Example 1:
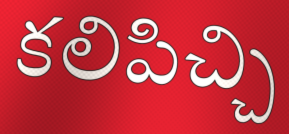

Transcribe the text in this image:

కలిపిచ్చి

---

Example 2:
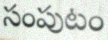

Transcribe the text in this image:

సంపుటం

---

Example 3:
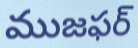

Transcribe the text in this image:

ముజఫర్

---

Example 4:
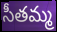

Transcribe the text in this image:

సీతమ్మ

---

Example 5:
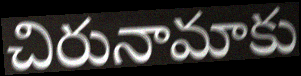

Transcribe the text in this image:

చిరునామాకు